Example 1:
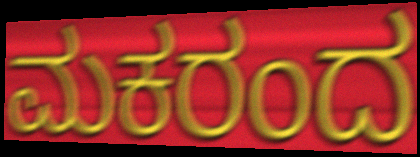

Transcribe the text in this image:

ಮಕರಂದ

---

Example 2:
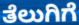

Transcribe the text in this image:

ತೆಲುಗಿಗೆ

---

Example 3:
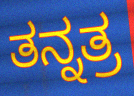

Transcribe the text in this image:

ತನ್ನತ್ರ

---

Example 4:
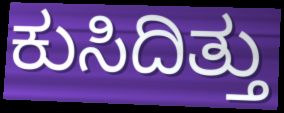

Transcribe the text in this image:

ಕುಸಿದಿತ್ತು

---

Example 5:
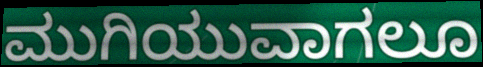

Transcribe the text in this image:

ಮುಗಿಯುವಾಗಲೂ